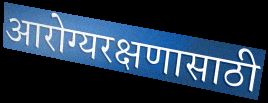
आरोग्यरक्षणासाठी